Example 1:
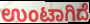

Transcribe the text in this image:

ಉಂಟಾಗಿದೆ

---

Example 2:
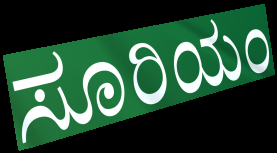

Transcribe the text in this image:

ಸೂರಿಯಂ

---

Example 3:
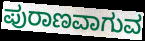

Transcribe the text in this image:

ಪುರಾಣವಾಗುವ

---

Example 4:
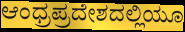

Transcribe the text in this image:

ಆಂಧ್ರಪ್ರದೇಶದಲ್ಲಿಯೂ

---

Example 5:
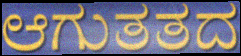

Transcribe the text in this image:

ಆಗುತತದ